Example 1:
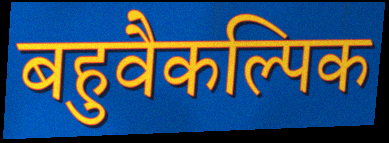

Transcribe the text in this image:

बहुवैकल्पिक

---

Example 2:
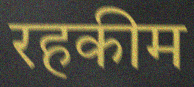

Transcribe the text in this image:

रहकीम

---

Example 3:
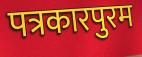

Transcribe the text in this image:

पत्रकारपुरम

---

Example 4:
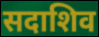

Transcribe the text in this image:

सदाशिव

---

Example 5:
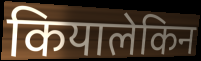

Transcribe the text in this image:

कियालेकिन